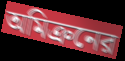
অমিক্রনের